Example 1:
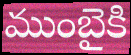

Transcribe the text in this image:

ముంబైకి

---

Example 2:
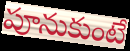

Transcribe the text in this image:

పూనుకుంటే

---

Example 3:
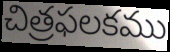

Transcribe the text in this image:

చిత్రఫలకము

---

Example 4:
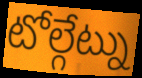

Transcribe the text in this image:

టోల్గేట్ను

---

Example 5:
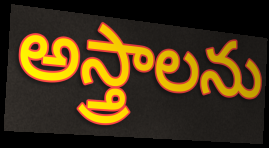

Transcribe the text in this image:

అస్త్రాలను